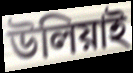
উলিয়াই